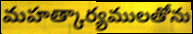
మహత్కార్యములతోను